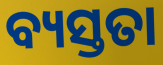
ବ୍ୟସ୍ତତା